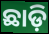
ଛାଡ଼ି